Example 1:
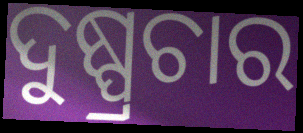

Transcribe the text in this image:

ଦୁଷ୍ପ୍ରଚାର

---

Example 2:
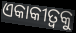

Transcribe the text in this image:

ଏକାକୀତ୍ଵକୁ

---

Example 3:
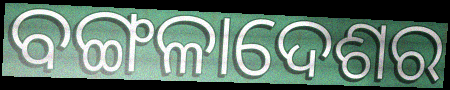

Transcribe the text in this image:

ବଙ୍ଗଳାଦେଶର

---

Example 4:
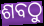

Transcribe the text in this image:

ଶବଠୁ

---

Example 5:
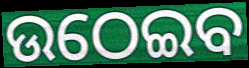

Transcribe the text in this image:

ଉଠେଇବ